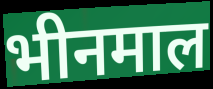
भीनमाल